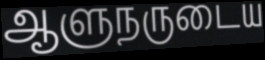
ஆளுநருடைய